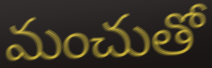
మంచుతో